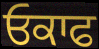
ਓਕਾਫ